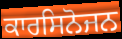
ਕਾਰਸਿਨੋਜਨ